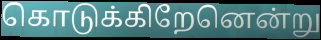
கொடுக்கிறேனென்று